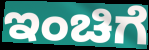
ಇಂಚಿಗೆ